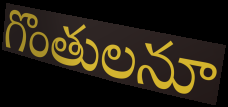
గొంతులనూ